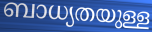
ബാധ്യതയുള്ള